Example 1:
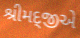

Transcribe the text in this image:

શ્રીમદ્જીએ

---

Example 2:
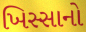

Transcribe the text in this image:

ખિસ્સાનો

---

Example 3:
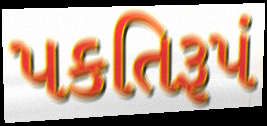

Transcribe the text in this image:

પકતિરૂપં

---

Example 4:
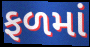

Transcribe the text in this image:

ફળમાં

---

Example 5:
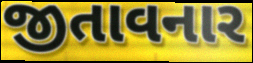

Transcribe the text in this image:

જીતાવનાર